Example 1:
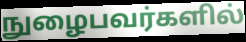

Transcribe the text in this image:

நுழைபவர்களில்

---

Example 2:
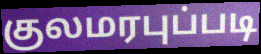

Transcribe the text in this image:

குலமரபுப்படி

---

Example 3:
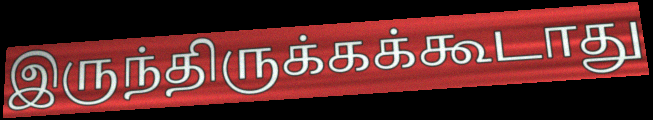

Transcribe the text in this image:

இருந்திருக்கக்கூடாது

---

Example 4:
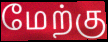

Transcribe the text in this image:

மேற்கு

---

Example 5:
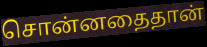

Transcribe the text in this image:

சொன்னதைதான்